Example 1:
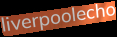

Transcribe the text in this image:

liverpoolecho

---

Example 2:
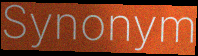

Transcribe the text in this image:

Synonym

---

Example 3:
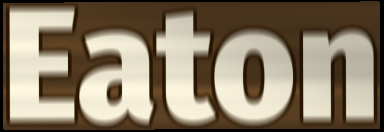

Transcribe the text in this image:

Eaton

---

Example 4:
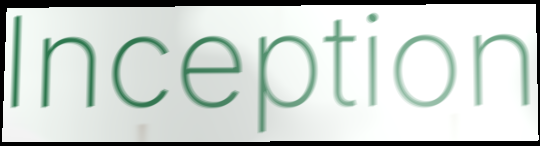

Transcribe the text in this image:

Inception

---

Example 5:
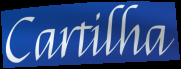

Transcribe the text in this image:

Cartilha